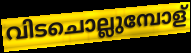
വിടചൊല്ലുമ്പോള്